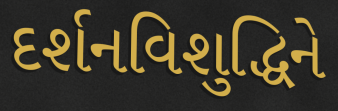
દર્શનવિશુદ્ધિને